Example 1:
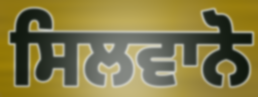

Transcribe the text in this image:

ਸਿਲਵਾਨੋ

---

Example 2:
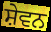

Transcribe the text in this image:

ਸ਼ੇਵਨ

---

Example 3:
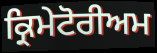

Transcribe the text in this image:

ਕ੍ਰਿਮੇਟੋਰੀਅਮ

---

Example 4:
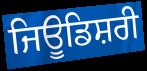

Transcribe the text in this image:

ਜਿਊਡਿਸ਼ਰੀ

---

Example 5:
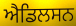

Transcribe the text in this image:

ਐਡਿਲਸਨ